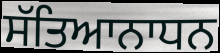
ਸੱਤਿਆਨਾਧਨ